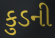
કુડની